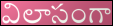
విలాసంగా